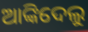
ଆଙ୍କିଦେଲୁ